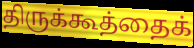
திருக்கூத்தைக்